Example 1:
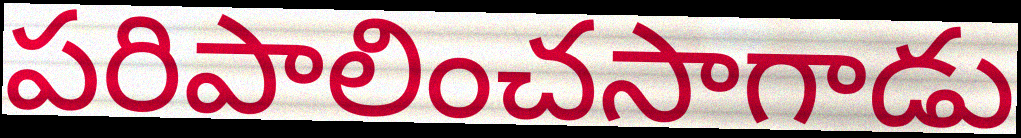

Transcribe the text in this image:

పరిపాలించసాగాడు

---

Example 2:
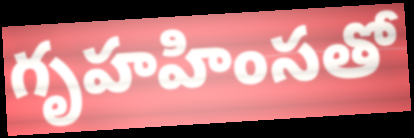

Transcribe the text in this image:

గృహహింసతో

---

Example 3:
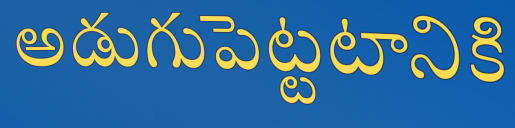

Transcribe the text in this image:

అడుగుపెట్టటానికి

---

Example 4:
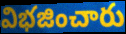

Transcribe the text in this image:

విభజించారు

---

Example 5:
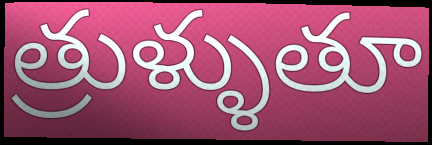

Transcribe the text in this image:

త్రుళ్ళుతూ